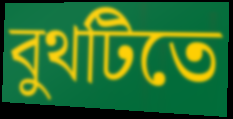
বুথটিতে